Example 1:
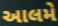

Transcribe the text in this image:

આલમે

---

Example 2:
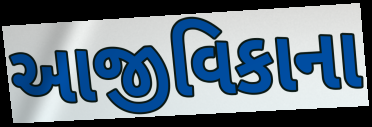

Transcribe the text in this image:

આજીવિકાના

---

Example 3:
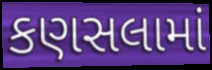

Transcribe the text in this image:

કણસલામાં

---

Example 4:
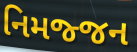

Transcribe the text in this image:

નિમજ્જન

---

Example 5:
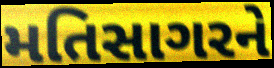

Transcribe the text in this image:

મતિસાગરને